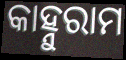
କାହ୍ନୁରାମ